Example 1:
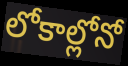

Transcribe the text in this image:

లోకాల్లోనో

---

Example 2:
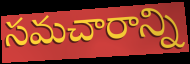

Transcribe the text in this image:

సమచారాన్ని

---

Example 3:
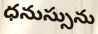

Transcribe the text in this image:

ధనుస్సును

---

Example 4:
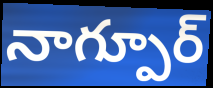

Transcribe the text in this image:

నాగ్పూర్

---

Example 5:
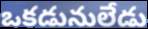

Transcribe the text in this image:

ఒకడునులేడు